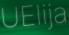
UElija